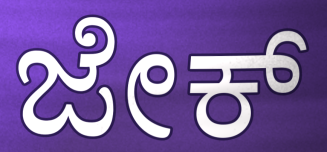
ಜೇಕ್